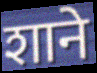
शाने